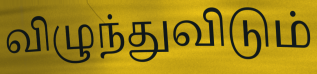
விழுந்துவிடும்